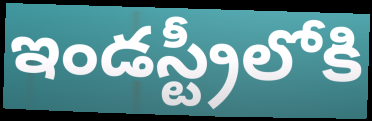
ఇండస్ట్రీలోకి